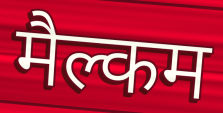
मैल्कम